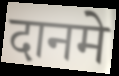
दानमे